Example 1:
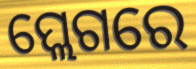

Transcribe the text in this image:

ପ୍ଲେଗରେ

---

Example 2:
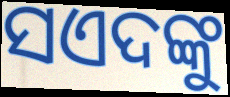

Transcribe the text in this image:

ସଏଦଙ୍କୁ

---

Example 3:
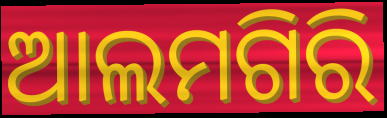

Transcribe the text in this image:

ଆଲମଗିରି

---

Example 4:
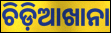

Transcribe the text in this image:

ଚିଡ଼ିଆଖାନା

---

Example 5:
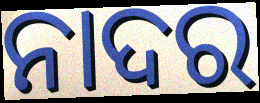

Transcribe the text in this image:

ନାଦର